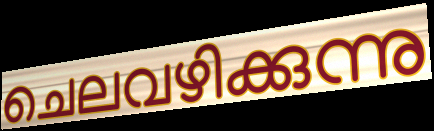
ചെലവഴിക്കുന്നു